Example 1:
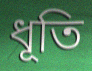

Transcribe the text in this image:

ধূতি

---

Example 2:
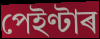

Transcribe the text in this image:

পেইণ্টাৰ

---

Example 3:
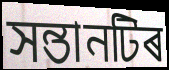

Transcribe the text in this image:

সন্তানটিৰ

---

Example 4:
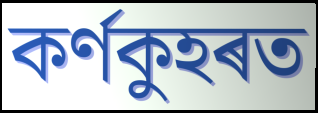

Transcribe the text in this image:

কৰ্ণকুহৰত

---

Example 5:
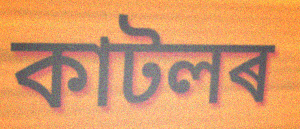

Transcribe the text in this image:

কাটলৰ